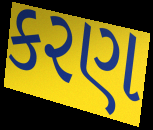
કરણ